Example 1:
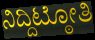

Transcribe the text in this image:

ನಿದ್ದಿಟ್ಠೋತಿ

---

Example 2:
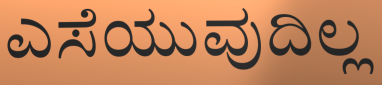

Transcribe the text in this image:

ಎಸೆಯುವುದಿಲ್ಲ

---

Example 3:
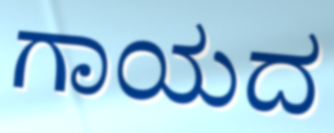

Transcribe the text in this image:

ಗಾಯದ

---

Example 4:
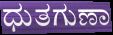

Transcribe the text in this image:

ಧುತಗುಣಾ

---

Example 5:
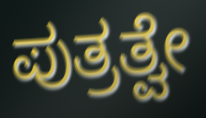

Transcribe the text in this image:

ಪುತ್ರತ್ವೇ